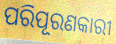
ପରିପୂରଣକାରୀ